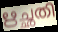
ഋച്ഛതി